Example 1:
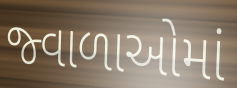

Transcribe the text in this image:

જ્વાળાઓમાં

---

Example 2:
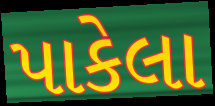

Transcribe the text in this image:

પાકેલા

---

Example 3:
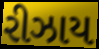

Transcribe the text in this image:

રીઝાય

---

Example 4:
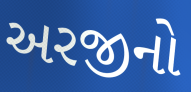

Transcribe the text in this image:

અરજીનો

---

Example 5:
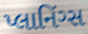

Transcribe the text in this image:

પ્લાનિંગ્સ